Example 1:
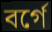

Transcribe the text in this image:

বর্গে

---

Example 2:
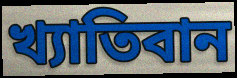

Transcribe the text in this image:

খ্যাতিবান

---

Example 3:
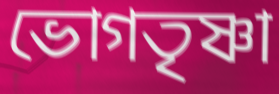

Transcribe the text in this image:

ভোগতৃষ্ণা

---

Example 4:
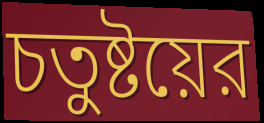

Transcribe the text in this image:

চতুষ্টয়ের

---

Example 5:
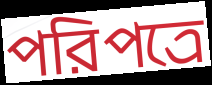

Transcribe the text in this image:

পরিপত্রে